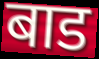
बाड